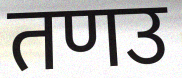
तणउ